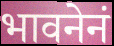
भावनेनं